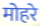
मोहरे